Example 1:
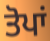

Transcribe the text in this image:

ਤੋਪਾਂ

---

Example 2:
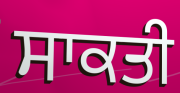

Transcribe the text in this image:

ਸਾਕਤੀ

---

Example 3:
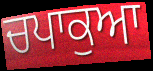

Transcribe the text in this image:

ਚਪਾਕੁਆ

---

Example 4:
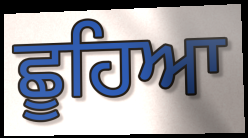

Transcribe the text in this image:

ਛੂਹਿਆ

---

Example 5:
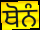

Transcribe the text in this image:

ਥੋਨੰ